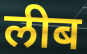
लीब